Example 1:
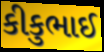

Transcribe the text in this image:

કીકુભાઈ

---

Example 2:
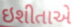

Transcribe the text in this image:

ઇશીતાએ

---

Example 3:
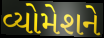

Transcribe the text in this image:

વ્યોમેશને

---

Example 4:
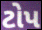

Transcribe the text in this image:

ટોપ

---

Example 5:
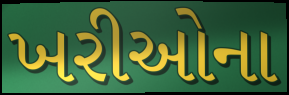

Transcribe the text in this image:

ખરીઓના